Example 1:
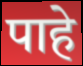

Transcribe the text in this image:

पाहे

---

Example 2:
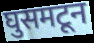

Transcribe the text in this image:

घुसमटून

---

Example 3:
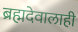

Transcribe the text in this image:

ब्रह्मदेवालाही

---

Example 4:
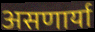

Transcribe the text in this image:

असणार्या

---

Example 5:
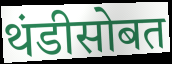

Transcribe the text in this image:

थंडीसोबत